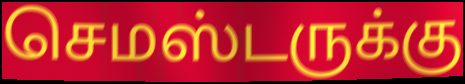
செமஸ்டருக்கு